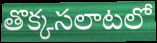
తొక్కసలాటలో